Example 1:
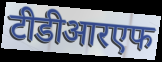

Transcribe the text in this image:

टीडीआरएफ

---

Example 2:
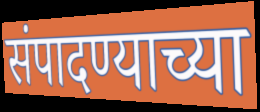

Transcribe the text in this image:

संपादण्याच्या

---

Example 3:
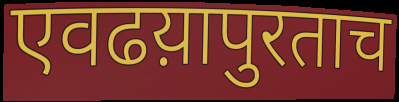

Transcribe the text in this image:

एवढय़ापुरताच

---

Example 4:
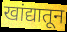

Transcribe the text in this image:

खांद्यातून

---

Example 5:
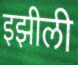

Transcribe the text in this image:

इझीली